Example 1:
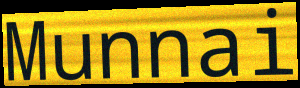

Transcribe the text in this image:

Munnai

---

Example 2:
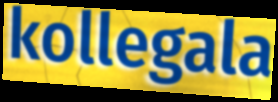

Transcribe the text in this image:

kollegala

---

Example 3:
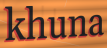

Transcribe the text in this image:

khuna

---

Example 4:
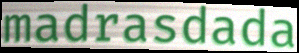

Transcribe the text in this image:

madrasdada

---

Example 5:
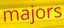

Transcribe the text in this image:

majors